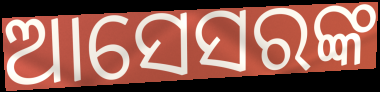
ଆସେସରଙ୍କ